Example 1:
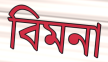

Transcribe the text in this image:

বিমনা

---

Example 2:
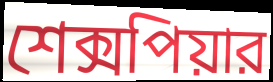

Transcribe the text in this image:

শেক্সপিয়ার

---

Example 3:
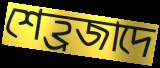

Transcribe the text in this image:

শেহ্রজাদে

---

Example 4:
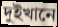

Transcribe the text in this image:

দুইখানে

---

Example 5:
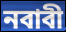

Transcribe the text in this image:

নবাবী